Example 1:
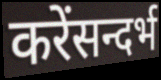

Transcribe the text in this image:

करेंसन्दर्भ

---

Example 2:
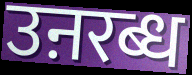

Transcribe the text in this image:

उऩरब्ध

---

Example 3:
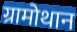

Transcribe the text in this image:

ग्रामोथान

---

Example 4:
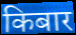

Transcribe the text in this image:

किबार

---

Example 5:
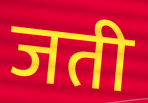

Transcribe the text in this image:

जती